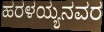
ಹರಳಯ್ಯನವರ